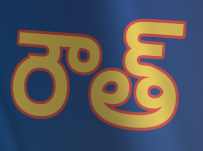
రౌత్